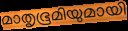
മാതൃഭൂമിയുമായി